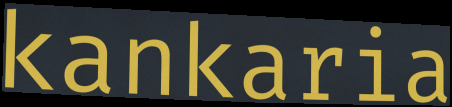
kankaria